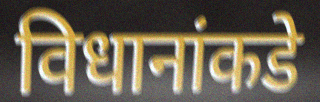
विधानांकडे